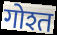
गोश्त